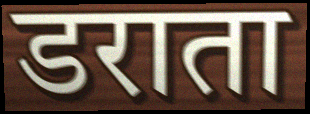
डराता